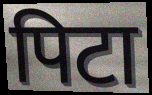
पिटा